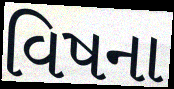
વિષના